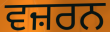
ਵਜ਼ਰਨ